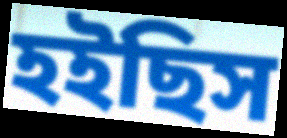
হইছিস